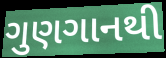
ગુણગાનથી